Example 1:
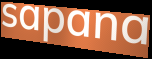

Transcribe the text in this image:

sapana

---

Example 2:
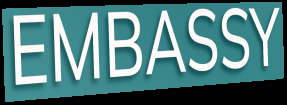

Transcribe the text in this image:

EMBASSY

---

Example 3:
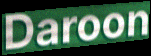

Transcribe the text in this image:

Daroon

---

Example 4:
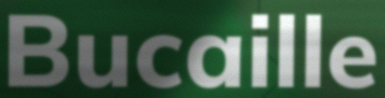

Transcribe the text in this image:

Bucaille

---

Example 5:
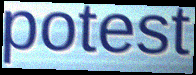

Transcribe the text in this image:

potest